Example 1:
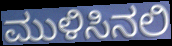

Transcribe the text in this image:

ಮುಳಿಸಿನಲಿ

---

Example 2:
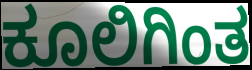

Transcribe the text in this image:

ಕೂಲಿಗಿಂತ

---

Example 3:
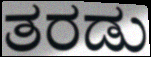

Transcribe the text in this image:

ತರಡು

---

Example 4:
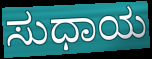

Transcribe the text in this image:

ಸುಧಾಯ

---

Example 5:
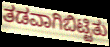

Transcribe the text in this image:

ತಡವಾಗಿಬಿಟ್ಟಿತು